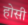
होसी